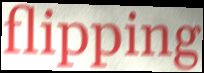
flipping